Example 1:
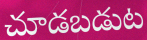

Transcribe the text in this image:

చూడబడుట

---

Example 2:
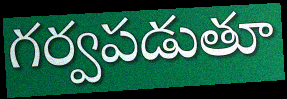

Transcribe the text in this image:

గర్వపడుతూ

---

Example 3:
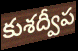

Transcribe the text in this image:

కుశద్వీప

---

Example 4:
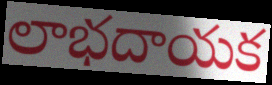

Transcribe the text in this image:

లాభదాయక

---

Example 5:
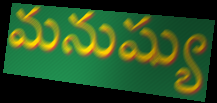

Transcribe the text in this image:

మనుష్యు